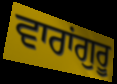
ਵਾਰਾਂਗੁਰੂ